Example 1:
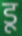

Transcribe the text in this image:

डू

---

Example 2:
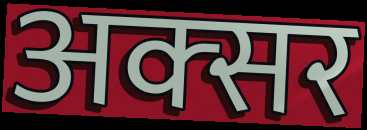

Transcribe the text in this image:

अक्‍सर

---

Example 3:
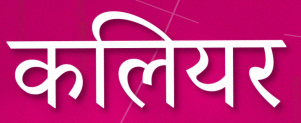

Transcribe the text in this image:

कलियर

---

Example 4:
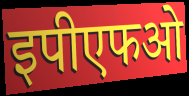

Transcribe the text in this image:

इपीएफओ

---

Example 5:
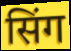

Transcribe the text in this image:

सिंग